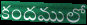
కందములో